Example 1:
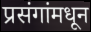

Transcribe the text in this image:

प्रसंगांमधून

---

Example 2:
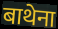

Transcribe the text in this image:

बाथेना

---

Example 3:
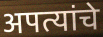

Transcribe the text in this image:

अपत्यांचे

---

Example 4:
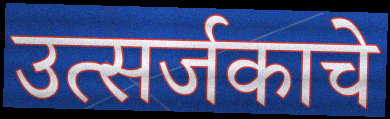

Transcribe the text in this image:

उत्सर्जकाचे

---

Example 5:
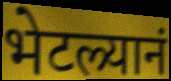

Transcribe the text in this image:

भेटल्यानं